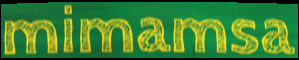
mimamsa